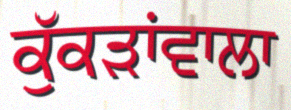
ਕੁੱਕੜਾਂਵਾਲਾ